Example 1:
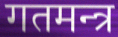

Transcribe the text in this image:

गतमन्त्र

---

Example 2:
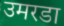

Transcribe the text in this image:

उमरडा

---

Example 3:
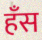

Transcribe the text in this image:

हँस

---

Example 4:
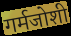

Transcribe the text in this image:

गर्मजोशी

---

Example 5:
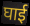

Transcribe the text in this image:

घाई